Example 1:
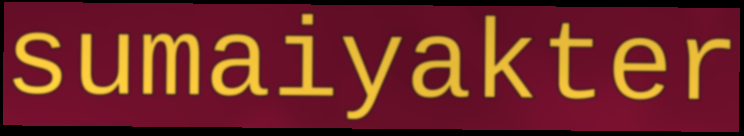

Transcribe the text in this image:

sumaiyakter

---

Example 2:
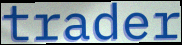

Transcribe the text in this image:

trader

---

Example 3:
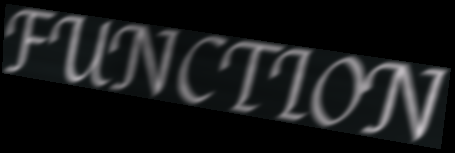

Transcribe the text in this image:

FUNCTION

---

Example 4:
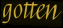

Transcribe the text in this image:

gotten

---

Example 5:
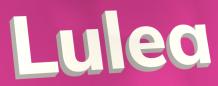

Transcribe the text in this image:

Lulea